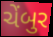
ચેંબુર